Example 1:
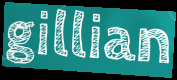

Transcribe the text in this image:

gillian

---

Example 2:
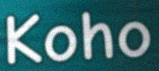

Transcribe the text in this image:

Koho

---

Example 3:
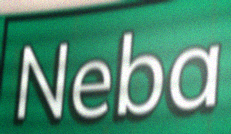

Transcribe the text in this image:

Neba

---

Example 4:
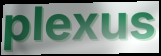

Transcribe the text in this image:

plexus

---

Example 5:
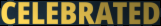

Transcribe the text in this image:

CELEBRATED